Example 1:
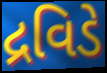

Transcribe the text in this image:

દ્રવિડે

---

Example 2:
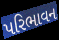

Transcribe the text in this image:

પરિભાવન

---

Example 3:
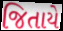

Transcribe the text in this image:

જિતાયે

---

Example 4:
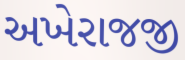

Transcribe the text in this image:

અખેરાજજી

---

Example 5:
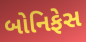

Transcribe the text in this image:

બોનિફેસ